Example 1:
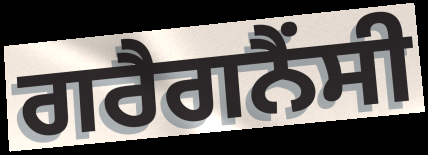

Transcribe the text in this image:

ਗਰੈਗਨੈਂਸੀ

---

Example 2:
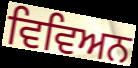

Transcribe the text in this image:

ਵਿਵਿਅਨ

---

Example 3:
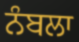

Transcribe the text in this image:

ਨੰਬਲਾ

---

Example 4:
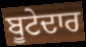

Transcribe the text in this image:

ਬੂਟੇਦਾਰ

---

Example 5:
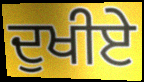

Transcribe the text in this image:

ਦੁਖੀਏ